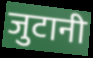
जुटानी